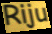
Riju